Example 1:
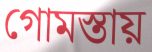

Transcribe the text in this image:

গোমস্তায়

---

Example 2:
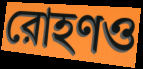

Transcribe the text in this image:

রোহণও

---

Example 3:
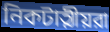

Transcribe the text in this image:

নিকটাত্মীয়রা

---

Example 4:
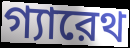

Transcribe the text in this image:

গ্যারেথ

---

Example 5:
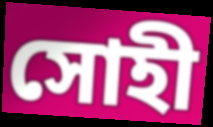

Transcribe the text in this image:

সোহী